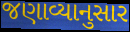
જણાવ્યાનુસાર